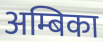
अम्बिका